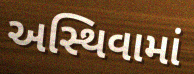
અસ્થિવામાં